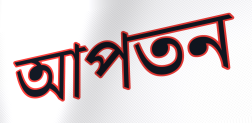
আপতন